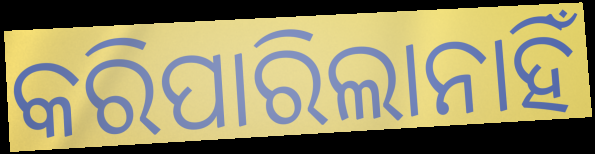
କରିପାରିଲାନାହିଁ